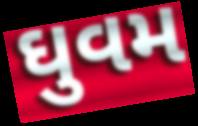
ઘુવમ